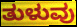
ತುಳುವು